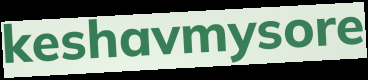
keshavmysore